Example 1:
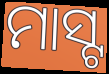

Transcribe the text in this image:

ମାସ୍ଟ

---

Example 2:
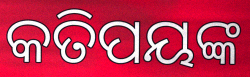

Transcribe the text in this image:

କତିପୟଙ୍କ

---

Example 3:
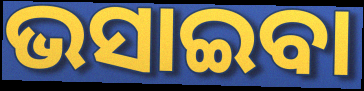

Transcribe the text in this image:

ଭସାଇବା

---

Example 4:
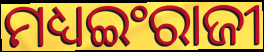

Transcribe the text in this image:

ମଧ୍ୟଇଂରାଜୀ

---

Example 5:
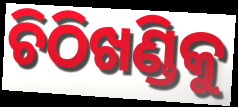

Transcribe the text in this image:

ଚିଠିଖଣ୍ଡିକୁ